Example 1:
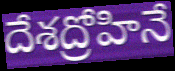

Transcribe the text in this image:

దేశద్రోహినే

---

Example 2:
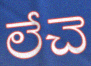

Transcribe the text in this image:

లేచె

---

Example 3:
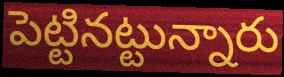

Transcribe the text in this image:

పెట్టినట్టున్నారు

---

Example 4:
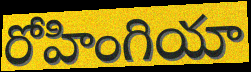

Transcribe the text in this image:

రోహింగియా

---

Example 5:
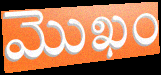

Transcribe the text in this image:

మొఖం